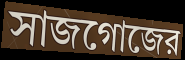
সাজগোজের